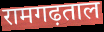
रामगढ़ताल